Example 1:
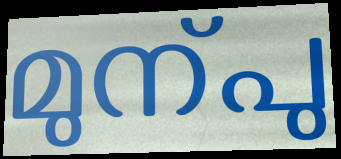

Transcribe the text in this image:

മുന്പു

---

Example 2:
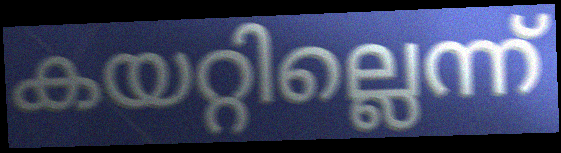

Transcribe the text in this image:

കയറ്റില്ലെന്ന്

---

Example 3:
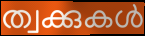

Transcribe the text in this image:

ത്വക്കുകൾ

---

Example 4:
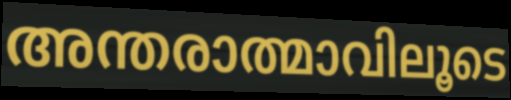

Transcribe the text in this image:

അന്തരാത്മാവിലൂടെ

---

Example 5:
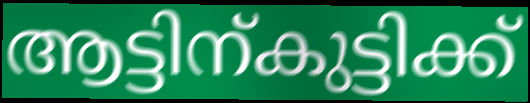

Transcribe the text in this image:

ആട്ടിന്കുട്ടിക്ക്